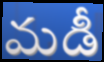
మడీ